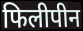
फिलीपीन